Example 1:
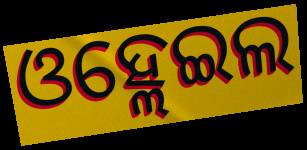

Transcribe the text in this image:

ଓହ୍ଲେଇଲ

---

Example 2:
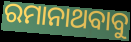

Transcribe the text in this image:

ରମାନାଥବାବୁ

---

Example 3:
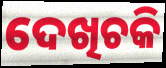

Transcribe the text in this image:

ଦେଖିଚକି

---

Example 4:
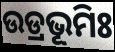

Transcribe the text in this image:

ଉଡ୍ରଭୂମିଃ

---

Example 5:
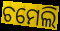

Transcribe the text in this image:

ଚମେଲି